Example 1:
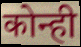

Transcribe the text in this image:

कोन्ही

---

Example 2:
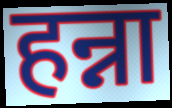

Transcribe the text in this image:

हन्ना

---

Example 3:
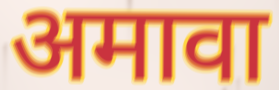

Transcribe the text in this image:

अमावा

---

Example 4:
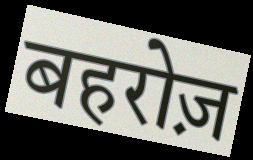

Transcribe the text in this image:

बहरोज़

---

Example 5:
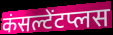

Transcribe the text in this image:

कंसल्टेंटप्लस